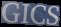
GICS